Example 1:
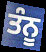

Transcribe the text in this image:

ਤੰਨੂ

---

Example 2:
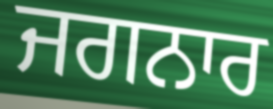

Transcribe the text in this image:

ਜਗਨਾਰ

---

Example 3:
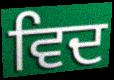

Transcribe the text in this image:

ਵਿਦ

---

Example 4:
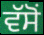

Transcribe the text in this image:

ਵੱਸੋਂ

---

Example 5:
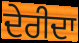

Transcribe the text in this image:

ਦੇਰੀਦਾ